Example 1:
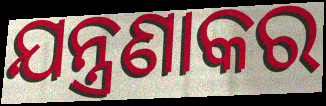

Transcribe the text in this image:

ଯନ୍ତ୍ରଣାକର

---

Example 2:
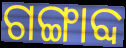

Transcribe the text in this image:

ଗଙ୍ଗାବ୍ଦ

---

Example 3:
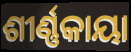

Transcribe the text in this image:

ଶୀର୍ଣ୍ଣକାୟା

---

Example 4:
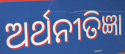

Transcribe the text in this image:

ଅର୍ଥନୀତିଜ୍ଞା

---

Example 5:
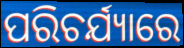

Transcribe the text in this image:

ପରିଚର୍ଯ୍ୟାରେ